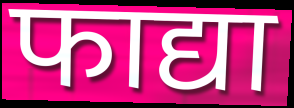
फाद्या